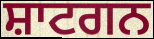
ਸ਼ਾਟਗਨ